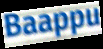
Baappu